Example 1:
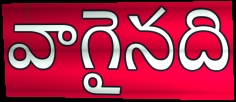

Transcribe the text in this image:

వాగైనది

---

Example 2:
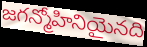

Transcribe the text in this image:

జగన్మోహినియైనది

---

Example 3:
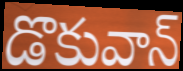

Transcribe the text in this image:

డొకువాన్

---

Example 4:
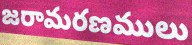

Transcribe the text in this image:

జరామరణములు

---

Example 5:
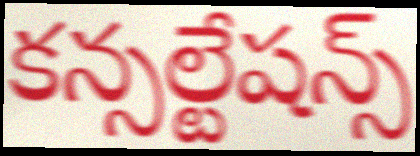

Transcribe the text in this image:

కన్సల్టేషన్స్